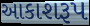
આકાશરૂપ